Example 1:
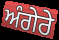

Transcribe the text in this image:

ਅੰਗੇਰੇ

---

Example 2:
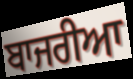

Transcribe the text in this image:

ਬਾਜਰੀਆ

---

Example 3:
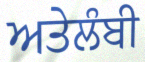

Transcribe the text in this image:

ਅਤੇਲੰਬੀ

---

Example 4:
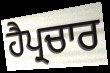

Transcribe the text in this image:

ਹੈਪ੍ਰਚਾਰ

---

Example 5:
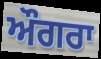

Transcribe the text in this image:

ਔਗਰਾ